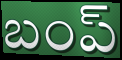
బంప్